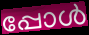
പ്പോൾ